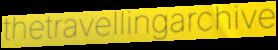
thetravellingarchive